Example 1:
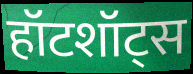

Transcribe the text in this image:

हॉटशॉट्स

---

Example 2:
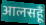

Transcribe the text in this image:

आलसहूँ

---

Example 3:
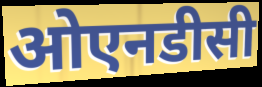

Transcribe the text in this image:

ओएनडीसी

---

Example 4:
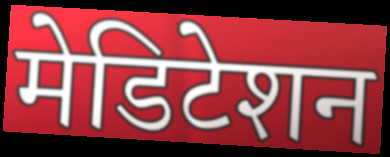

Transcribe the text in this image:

मेडिटेशन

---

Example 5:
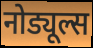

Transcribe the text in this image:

नोड्यूल्स